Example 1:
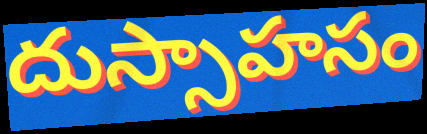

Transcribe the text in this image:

దుస్సాహసం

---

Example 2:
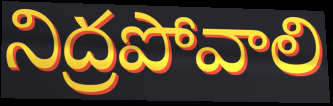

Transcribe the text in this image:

నిద్రపోవాలి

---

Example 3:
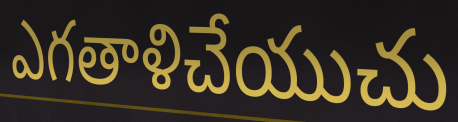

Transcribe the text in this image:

ఎగతాళిచేయుచు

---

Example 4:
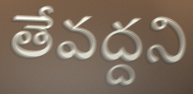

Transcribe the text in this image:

తేవద్దని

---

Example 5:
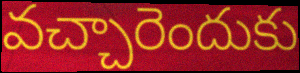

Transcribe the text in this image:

వచ్చారెందుకు